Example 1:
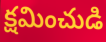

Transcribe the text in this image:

క్షమించుడి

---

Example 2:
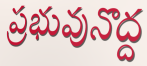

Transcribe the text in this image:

ప్రభువునొద్ద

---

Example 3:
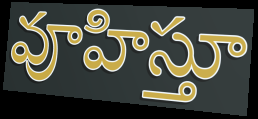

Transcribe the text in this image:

వూహిస్తూ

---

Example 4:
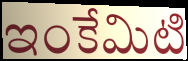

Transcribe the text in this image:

ఇంకేమిటి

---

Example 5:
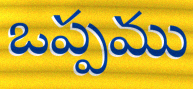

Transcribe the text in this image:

ఒప్పము